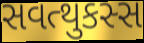
સવત્થુકસ્સ